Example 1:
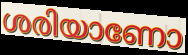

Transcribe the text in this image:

ശരിയാണോ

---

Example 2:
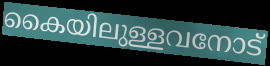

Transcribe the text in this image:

കൈയിലുള്ളവനോട്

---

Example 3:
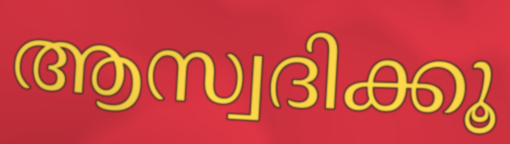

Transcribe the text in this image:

ആസ്വദിക്കൂ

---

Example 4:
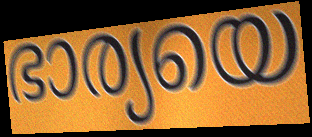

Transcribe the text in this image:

ഭാര്യയെ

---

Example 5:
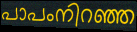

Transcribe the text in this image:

പാപംനിറഞ്ഞ